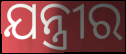
ଯନ୍ତ୍ରୀର